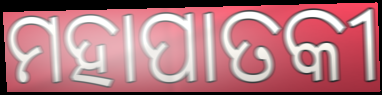
ମହାପାତକୀ